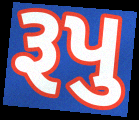
રૂપુ